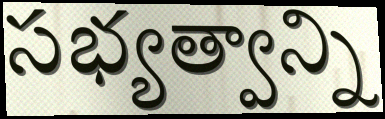
సభ్యత్వాన్ని